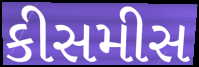
કીસમીસ